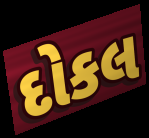
દોકલ